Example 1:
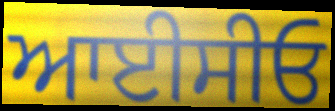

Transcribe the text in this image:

ਆਈਸੀਓ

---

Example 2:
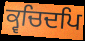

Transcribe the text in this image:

ਕ੍ਵਚਿਦਪਿ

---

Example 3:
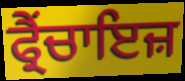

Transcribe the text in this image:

ਫ੍ਰੈਂਚਾਇਜ਼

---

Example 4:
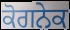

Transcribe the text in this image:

ਕੋਗਨੇਕ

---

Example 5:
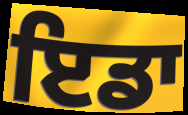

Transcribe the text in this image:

ਇਡਾ